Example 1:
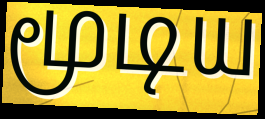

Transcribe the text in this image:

மூடிய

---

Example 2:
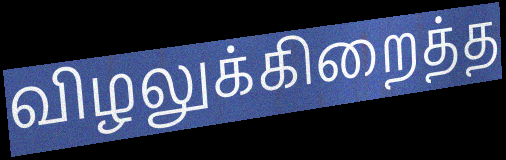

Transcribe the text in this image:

விழலுக்கிறைத்த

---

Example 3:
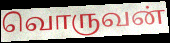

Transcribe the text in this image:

வொருவன்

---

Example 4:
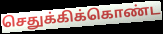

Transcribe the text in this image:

செதுக்கிக்கொண்ட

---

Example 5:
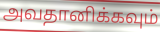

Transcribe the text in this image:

அவதானிக்கவும்